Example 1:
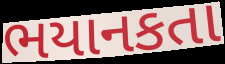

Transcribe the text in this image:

ભયાનકતા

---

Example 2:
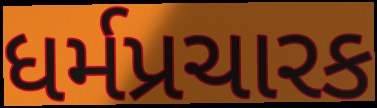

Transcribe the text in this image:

ધર્મપ્રચારક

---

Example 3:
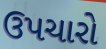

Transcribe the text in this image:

ઉપચારો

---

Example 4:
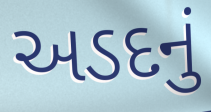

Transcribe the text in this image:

અડદનું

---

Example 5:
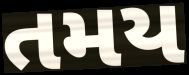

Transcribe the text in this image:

તમય